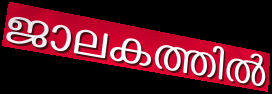
ജാലകത്തിൽ